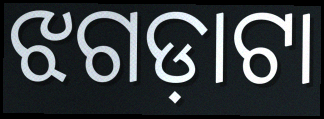
ଝଗଡ଼ାଟା